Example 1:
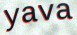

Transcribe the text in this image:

yava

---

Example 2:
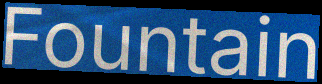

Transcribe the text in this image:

Fountain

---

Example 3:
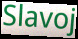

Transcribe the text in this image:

Slavoj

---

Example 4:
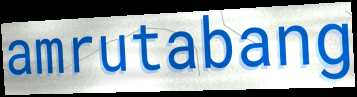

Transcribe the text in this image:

amrutabang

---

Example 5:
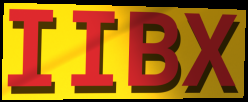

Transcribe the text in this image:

IIBX